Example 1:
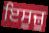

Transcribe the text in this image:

ਇਸੂਜ਼ੂ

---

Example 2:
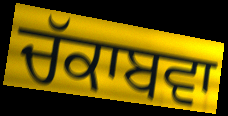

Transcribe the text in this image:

ਚੱਕਾਬਵਾ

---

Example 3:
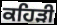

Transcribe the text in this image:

ਕਹਿੜੀ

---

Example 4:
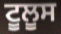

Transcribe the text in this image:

ਟੂਲੂਸ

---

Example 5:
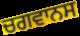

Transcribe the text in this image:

ਚਗਵਾਨਸ